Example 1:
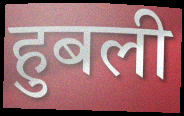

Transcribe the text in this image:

हुबली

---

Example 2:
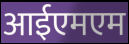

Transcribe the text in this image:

आईएमएम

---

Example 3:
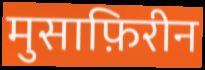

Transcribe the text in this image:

मुसाफ़िरीन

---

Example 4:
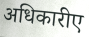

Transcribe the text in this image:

अधिकारीए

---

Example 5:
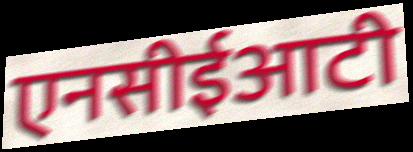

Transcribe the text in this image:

एनसीईआटी